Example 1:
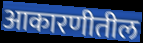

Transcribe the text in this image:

आकारणीतील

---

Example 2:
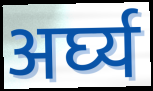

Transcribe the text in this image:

अर्घ्य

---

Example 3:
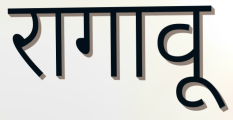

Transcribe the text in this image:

रागावू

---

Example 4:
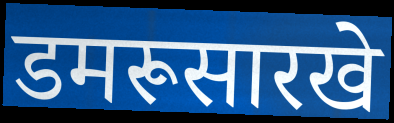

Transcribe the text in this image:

डमरूसारखे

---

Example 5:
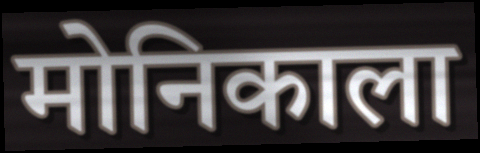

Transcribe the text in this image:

मोनिकाला